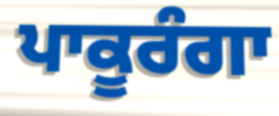
ਪਾਕੂਰੰਗਾ